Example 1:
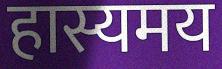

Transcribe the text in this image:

हास्यमय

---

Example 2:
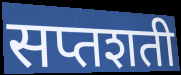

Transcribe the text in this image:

सप्तशती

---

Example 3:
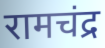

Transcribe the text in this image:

रामचंद्र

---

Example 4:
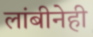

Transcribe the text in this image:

लांबीनेही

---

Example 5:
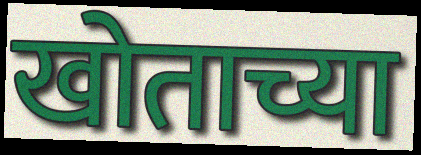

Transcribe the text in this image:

खोताच्या